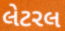
લેટરલ